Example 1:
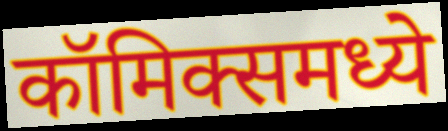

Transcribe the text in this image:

कॉमिक्समध्ये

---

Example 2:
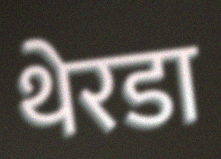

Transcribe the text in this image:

थेरडा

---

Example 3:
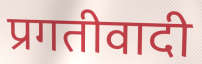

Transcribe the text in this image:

प्रगतीवादी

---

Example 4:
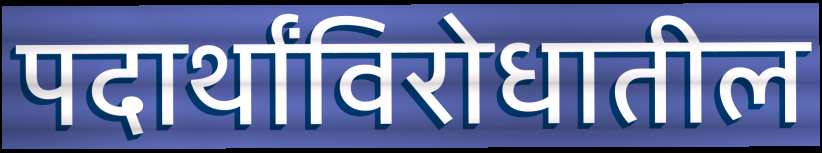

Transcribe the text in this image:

पदार्थांविरोधातील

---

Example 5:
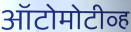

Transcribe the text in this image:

ऑटोमोटीव्ह